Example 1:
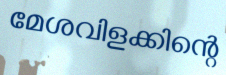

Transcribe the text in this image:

മേശവിളക്കിന്റെ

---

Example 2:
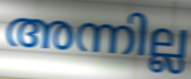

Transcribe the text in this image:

അന്നില്ല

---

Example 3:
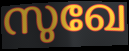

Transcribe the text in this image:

സുഖേ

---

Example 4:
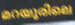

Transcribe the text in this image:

മറയൂരിലെ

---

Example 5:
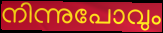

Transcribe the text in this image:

നിന്നുപോവും